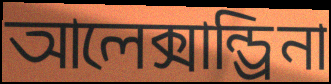
আলেক্সান্ড্রিনা